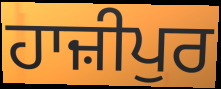
ਹਾਜ਼ੀਪੁਰ